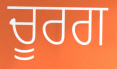
ਚੂਰਗ